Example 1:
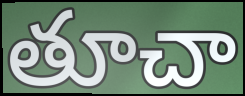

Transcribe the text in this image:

తూచా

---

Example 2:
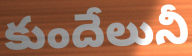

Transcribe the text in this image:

కుందేలునీ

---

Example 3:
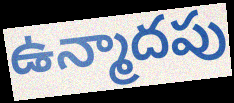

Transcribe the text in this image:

ఉన్మాదపు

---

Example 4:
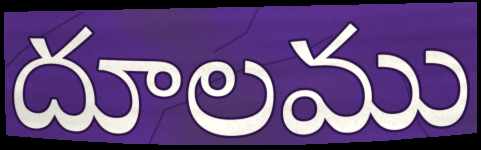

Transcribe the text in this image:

దూలము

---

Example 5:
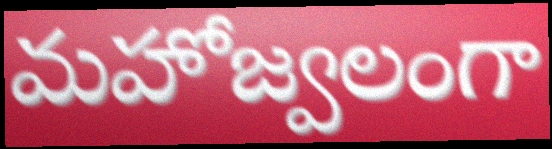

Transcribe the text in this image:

మహోజ్వలంగా